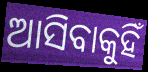
ଆସିବାକୁହିଁ